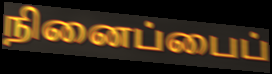
நினைப்பைப்